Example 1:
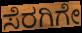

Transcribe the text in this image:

ಸೆರಗಿಗೇ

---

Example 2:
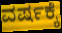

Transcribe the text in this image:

ವರ್ಷಕ್ಕೆ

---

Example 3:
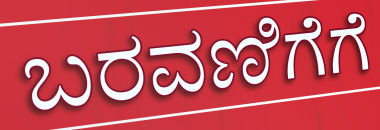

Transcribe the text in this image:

ಬರವಣಿಗೆಗೆ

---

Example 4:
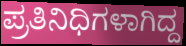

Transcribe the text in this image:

ಪ್ರತಿನಿಧಿಗಳಾಗಿದ್ದ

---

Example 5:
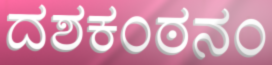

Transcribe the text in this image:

ದಶಕಂಠನಂ